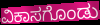
ವಿಕಾಸಗೊಂಡು